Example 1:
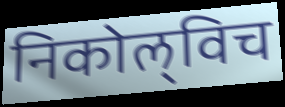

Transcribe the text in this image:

निकोल्विच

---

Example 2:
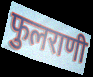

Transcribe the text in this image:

फुलराणी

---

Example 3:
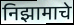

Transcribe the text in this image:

निझामाचे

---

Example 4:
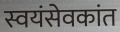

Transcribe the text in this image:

स्वयंसेवकांत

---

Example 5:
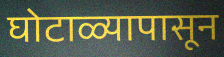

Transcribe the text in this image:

घोटाळ्यापासून